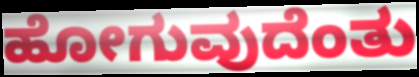
ಹೋಗುವುದೆಂತು